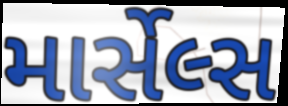
માર્સેલ્સ